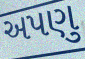
અપણુ